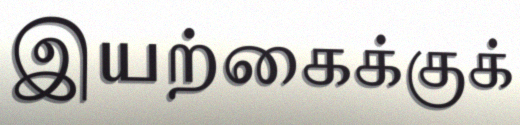
இயற்கைக்குக்